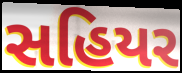
સહિયર